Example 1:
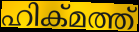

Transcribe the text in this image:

ഹിക്മത്ത്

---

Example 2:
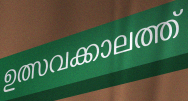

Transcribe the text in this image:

ഉത്സവക്കാലത്ത്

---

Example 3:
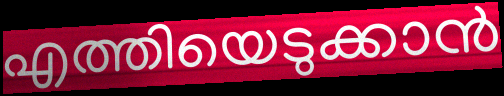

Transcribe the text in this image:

എത്തിയെടുക്കാൻ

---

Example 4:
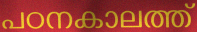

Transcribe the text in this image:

പഠനകാലത്ത്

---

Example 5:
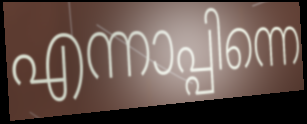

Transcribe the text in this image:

എന്നാപ്പിന്നെ